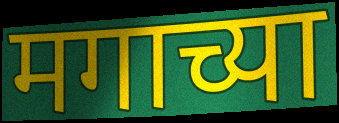
मगाच्या